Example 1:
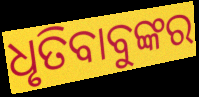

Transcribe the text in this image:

ଧୃତିବାବୁଙ୍କର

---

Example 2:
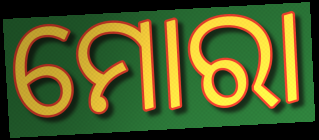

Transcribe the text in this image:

ମୋରା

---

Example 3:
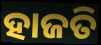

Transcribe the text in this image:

ହାଜତି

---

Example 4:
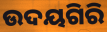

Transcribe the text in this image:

ଉଦୟଗିରି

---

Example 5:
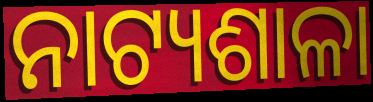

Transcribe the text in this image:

ନାଟ୍ୟଶାଳା